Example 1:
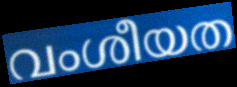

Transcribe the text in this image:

വംശീയത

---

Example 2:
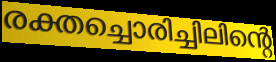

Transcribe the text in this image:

രക്തച്ചൊരിച്ചിലിന്റെ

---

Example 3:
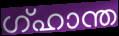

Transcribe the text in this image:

ഗ്ഹാന്ത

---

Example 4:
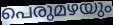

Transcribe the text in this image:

പെരുമഴയും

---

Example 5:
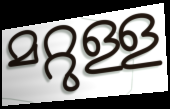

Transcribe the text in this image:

മറ്റുള്ള